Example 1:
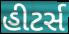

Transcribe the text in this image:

હીટર્સ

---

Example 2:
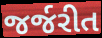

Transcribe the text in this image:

જર્જરીત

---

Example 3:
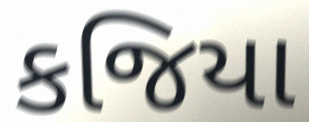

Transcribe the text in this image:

કજિયા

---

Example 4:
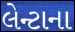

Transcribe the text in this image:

લેન્ટાના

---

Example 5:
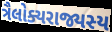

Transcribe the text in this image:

ત્રૈલોક્યરાજ્યસ્ય